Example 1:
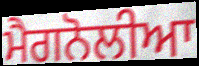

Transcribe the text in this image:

ਮੈਗਨੋਲੀਆ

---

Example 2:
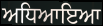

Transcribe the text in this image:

ਅਧਿਆਇਆ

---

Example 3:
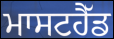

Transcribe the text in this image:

ਮਾਸਟਹੈੱਡ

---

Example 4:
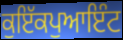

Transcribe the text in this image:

ਕੁਇੱਕਪੁਆਇੰਟ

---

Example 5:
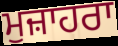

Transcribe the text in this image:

ਮੁਜ਼ਾਹਰਾ